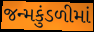
જન્મકુંડળીમાં